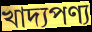
খাদ্যপণ্য